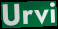
Urvi